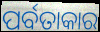
ପର୍ବତାକାର